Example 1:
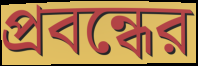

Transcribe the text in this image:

প্রবন্ধের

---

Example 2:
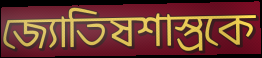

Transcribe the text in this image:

জ্যোতিষশাস্ত্রকে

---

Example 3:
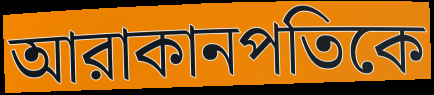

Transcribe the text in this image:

আরাকানপতিকে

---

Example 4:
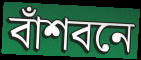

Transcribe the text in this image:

বাঁশবনে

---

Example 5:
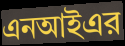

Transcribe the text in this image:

এনআইএর